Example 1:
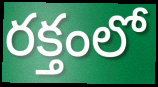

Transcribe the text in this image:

రక్తంలో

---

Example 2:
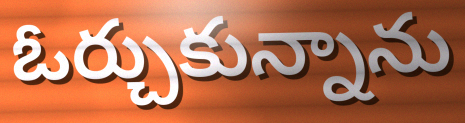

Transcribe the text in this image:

ఓర్చుకున్నాను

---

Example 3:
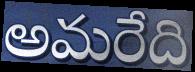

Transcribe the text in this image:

అమరేది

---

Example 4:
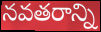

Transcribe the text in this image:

నవతరాన్ని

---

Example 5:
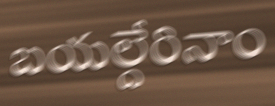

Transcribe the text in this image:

బయల్దేరినాం